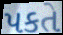
પકતે